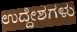
ಉದ್ದೇಶಗಳು